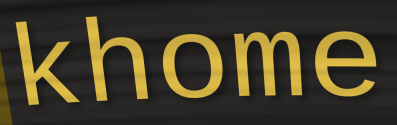
khome